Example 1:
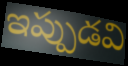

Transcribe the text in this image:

ఇప్పుడవి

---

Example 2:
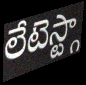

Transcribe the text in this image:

లేటెస్ట్గా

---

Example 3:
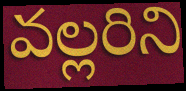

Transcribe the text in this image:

వల్లరిని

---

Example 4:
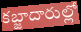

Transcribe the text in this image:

కబ్జాదారుల్లో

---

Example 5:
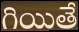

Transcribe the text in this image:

గియితే